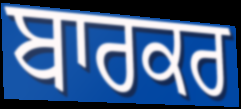
ਬਾਰਕਰ